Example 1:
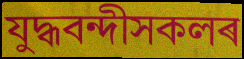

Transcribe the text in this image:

যুদ্ধবন্দীসকলৰ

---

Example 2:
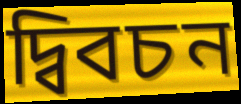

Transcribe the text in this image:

দ্বিবচন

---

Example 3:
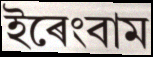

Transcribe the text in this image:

ইৰেংবাম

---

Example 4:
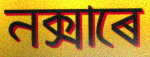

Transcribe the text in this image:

নক্সাৰে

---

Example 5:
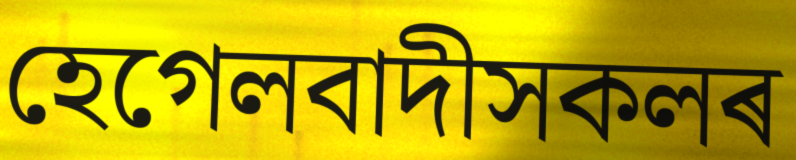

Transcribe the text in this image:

হেগেলবাদীসকলৰ